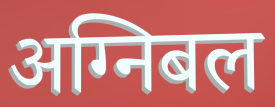
अग्निबल